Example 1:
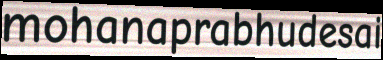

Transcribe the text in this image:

mohanaprabhudesai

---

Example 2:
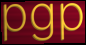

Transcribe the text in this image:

pgp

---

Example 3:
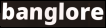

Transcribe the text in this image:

banglore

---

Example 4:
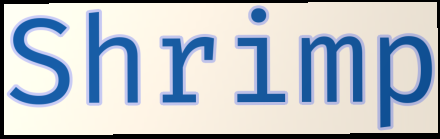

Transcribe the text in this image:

Shrimp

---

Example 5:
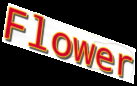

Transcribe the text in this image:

Flower